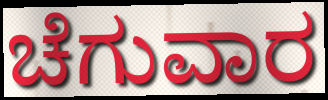
ಚೆಗುವಾರ